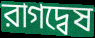
রাগদ্বেষ